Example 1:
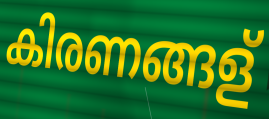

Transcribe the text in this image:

കിരണങ്ങള്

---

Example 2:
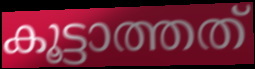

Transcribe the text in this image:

കൂട്ടാത്തത്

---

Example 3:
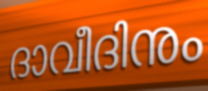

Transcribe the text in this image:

ദാവീദിനും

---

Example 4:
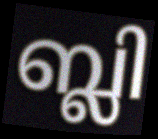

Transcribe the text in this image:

ബ്ലി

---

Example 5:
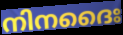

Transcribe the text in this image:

നിനദൈഃ